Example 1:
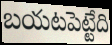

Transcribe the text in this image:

బయటపెట్టేది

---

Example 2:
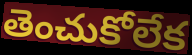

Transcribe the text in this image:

తెంచుకోలేక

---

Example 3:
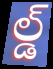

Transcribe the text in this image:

ల్డ్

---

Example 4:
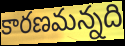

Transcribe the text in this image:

కారణమన్నది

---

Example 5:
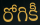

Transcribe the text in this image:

రోగికీ